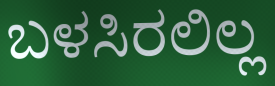
ಬಳಸಿರಲಿಲ್ಲ